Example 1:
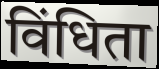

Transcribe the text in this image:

विंधिता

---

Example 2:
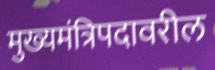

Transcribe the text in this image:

मुख्यमंत्रिपदावरील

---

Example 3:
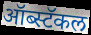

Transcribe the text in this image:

ऑब्स्टॅकल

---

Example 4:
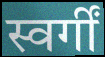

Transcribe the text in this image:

स्वर्गीं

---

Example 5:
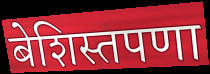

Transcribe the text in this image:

बेशिस्तपणा